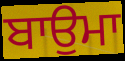
ਬਾਉਮਾ